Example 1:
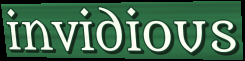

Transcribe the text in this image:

invidious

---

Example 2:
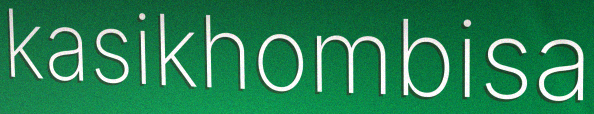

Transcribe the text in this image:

kasikhombisa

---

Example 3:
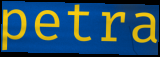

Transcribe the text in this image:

petra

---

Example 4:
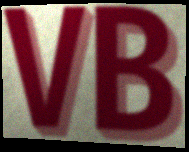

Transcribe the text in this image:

VB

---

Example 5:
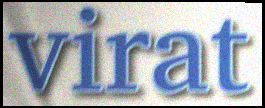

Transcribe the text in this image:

virat